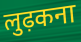
लुढ़कना